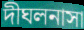
দীঘলনাসা